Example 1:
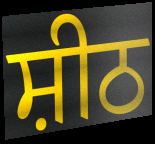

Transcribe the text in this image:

ਸ਼ੀਠ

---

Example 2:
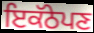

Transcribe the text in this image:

ਇਕੱਠੇਪਣ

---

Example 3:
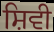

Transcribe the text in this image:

ਸ਼ਿਵੀ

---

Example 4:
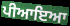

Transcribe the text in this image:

ਪੀਆਇਆ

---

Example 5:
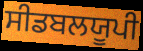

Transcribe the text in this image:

ਸੀਡਬਲਯੂਪੀ